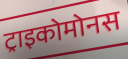
ट्राइकोमोनस